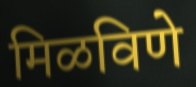
मिळविणे